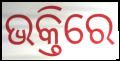
ଭକ୍ତିରେ